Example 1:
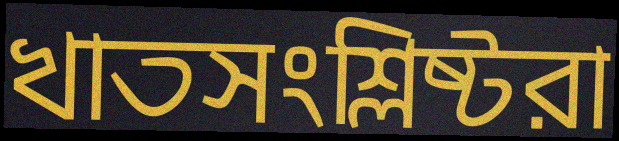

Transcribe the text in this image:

খাতসংশ্লিষ্টরা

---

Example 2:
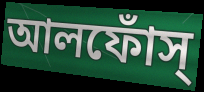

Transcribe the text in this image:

আলফোঁস্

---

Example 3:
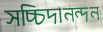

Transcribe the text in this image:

সচ্চিদানন্দন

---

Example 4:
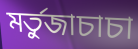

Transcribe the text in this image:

মর্তুজাচাচা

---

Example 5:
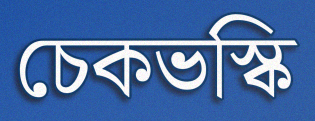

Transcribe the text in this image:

চেকভস্কি